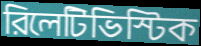
রিলেটিভিস্টিক